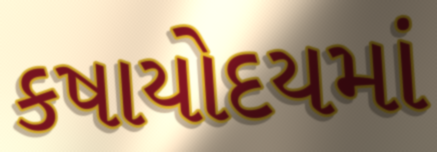
કષાયોદયમાં